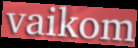
vaikom